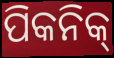
ପିକନିକ୍